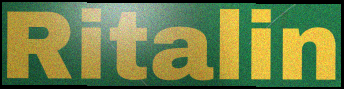
Ritalin